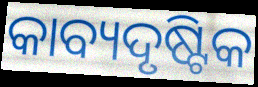
କାବ୍ୟଦୃଷ୍ଟିକ